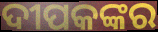
ଦୀପକଙ୍କର